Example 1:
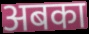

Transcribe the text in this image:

अबका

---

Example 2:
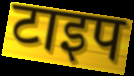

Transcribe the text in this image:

टाइप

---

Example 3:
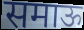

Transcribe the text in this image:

समाऊ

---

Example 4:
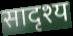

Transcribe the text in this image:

सादृश्य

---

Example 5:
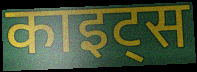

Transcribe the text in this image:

काइट्स